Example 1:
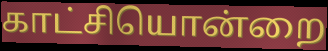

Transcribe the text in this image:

காட்சியொன்றை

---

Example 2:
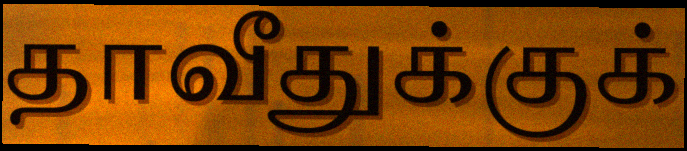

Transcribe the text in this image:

தாவீதுக்குக்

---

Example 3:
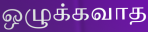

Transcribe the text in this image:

ஒழுக்கவாத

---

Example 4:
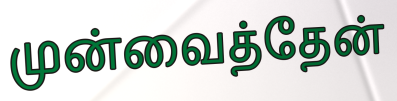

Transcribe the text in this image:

முன்வைத்தேன்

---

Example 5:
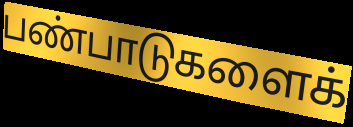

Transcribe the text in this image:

பண்பாடுகளைக்